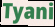
Tyani